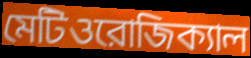
মেটিওরোজিক্যাল